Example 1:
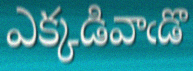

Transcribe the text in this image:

ఎక్కడివాఁడొ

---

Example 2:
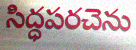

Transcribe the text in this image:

సిద్ధపరచెను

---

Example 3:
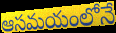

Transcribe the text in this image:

ఆసమయంలోనే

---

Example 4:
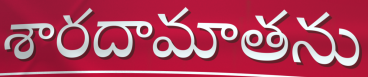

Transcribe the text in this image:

శారదామాతను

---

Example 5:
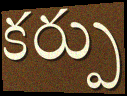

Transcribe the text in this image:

కర్పు